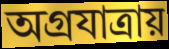
অগ্রযাত্রায়